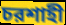
চরশাহী